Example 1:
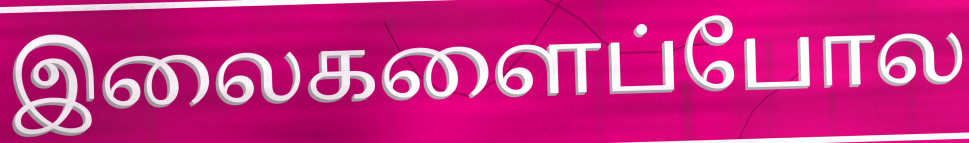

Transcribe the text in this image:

இலைகளைப்போல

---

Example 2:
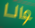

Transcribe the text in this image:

படி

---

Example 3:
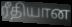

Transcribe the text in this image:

ரீதியான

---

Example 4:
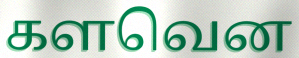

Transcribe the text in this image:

களவென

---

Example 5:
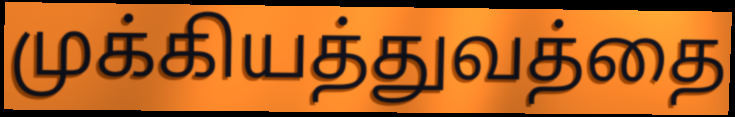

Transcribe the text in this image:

முக்கியத்துவத்தை